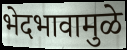
भेदभावामुळे